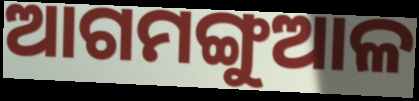
ଆଗମଙ୍ଗୁଆଳ